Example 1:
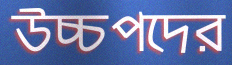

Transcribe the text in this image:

উচ্চপদের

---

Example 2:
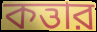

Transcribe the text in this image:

কত্তার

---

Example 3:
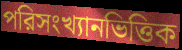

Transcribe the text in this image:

পরিসংখ্যানভিত্তিক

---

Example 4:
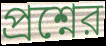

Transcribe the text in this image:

প্রশ্নের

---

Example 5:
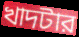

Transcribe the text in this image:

খাদটার